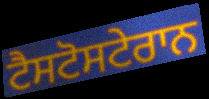
ਟੈਸਟੋਸਟੇਰਾਨ